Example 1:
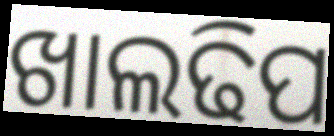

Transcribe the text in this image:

ଖାଲଢିପ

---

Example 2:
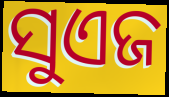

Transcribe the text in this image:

ସୁଏଜ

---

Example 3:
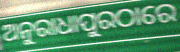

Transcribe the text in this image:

ଅନୁରାଧାପୁରଠାରେ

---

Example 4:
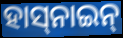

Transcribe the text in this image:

ହାସ୍‌ନାଇନ୍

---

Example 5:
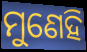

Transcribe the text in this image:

ମୁଣେହି